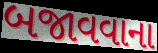
બજાવવાના